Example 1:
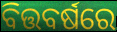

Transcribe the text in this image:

ବିତ୍ତବର୍ଷରେ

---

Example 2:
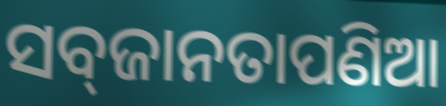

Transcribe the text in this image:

ସବ୍‌ଜାନତାପଣିଆ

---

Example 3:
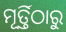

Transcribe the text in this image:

ମୂର୍ତ୍ତିଠାରୁ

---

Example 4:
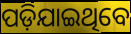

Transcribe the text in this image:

ପଡ଼ିଯାଇଥିବେ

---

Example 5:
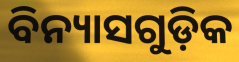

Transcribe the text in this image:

ବିନ୍ୟାସଗୁଡ଼ିକ